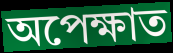
অপেক্ষাত